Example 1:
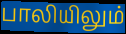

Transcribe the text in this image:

பாலியிலும்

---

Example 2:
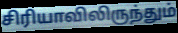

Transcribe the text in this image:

சிரியாவிலிருந்தும்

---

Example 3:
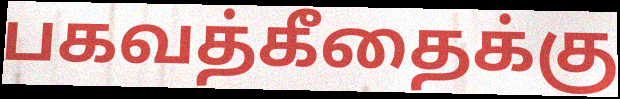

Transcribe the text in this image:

பகவத்கீதைக்கு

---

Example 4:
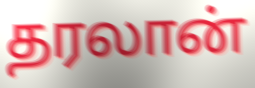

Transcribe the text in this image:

தரலான்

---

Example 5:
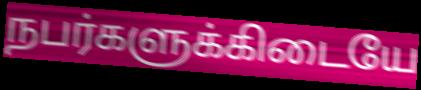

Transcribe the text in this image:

நபர்களுக்கிடையே